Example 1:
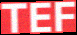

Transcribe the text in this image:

TEF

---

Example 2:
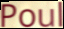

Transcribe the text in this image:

Poul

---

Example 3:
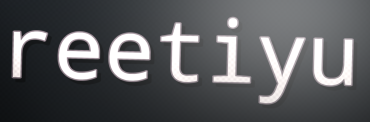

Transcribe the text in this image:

reetiyu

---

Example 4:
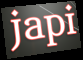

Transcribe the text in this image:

japi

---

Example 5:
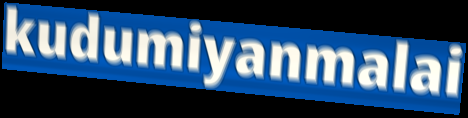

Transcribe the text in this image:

kudumiyanmalai